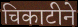
चिकाटीने